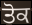
ਤੋਕ